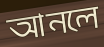
আনলে